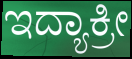
ಇದ್ಯಾಕ್ರೀ